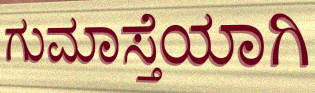
ಗುಮಾಸ್ತೆಯಾಗಿ